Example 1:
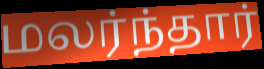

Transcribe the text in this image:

மலர்ந்தார்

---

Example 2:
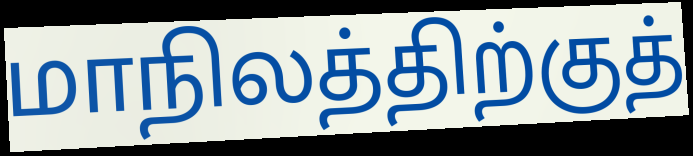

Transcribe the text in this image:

மாநிலத்திற்குத்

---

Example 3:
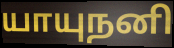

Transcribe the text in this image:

யாயுநனி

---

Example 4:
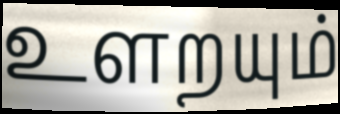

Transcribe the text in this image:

உளறயும்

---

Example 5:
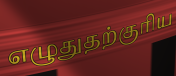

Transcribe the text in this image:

எழுதுதற்குரிய